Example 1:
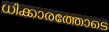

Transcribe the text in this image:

ധിക്കാരത്തോടെ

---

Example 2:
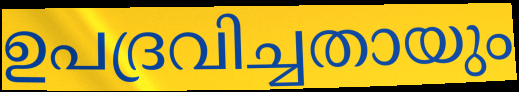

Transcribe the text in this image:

ഉപദ്രവിച്ചതായും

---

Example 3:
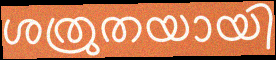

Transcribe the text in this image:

ശത്രുതയായി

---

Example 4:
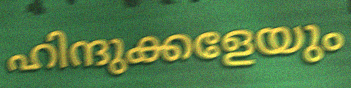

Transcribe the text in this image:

ഹിന്ദുക്കളേയും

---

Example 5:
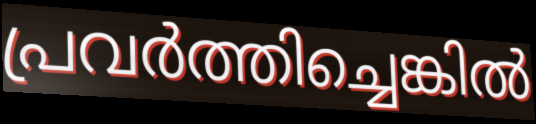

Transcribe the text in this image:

പ്രവർത്തിച്ചെങ്കിൽ